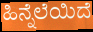
ಹಿನ್ನೆಲೆಯಿದೆ